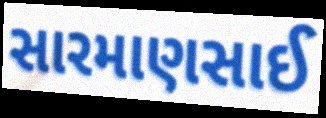
સારમાણસાઈ